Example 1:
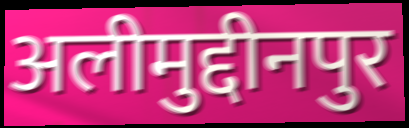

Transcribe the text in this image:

अलीमुद्दीनपुर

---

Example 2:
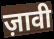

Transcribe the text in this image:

ज़ावी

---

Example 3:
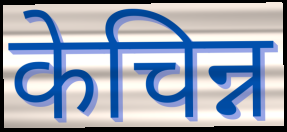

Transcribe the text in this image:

केचिन्न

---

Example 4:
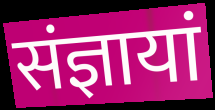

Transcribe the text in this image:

संज्ञायां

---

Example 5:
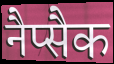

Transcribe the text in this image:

नैप्सैक